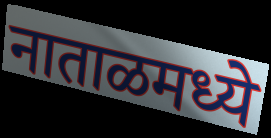
नाताळमध्ये